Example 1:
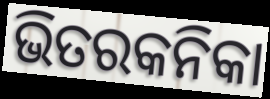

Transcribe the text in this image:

ଭିତରକନିକା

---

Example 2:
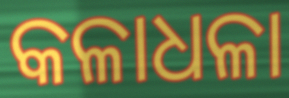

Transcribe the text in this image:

କଳାଧଳା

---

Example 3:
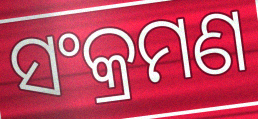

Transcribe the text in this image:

ସଂକ୍ରମଣ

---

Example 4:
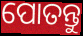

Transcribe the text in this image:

ପୋତନ୍ତୁ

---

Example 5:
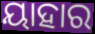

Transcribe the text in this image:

ୟାହାର